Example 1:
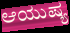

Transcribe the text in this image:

ಆಯುಷ್ಯ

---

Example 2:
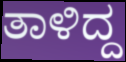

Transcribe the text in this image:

ತಾಳಿದ್ದ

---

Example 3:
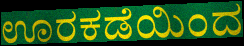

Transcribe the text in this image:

ಊರಕಡೆಯಿಂದ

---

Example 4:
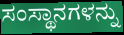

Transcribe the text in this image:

ಸಂಸ್ಥಾನಗಳನ್ನು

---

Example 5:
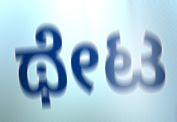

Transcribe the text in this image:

ಥೇಟ